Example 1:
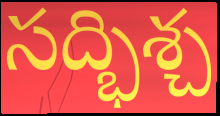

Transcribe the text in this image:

సద్భిశ్చ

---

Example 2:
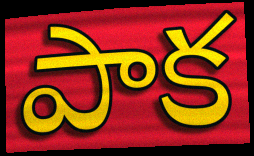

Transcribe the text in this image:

పాక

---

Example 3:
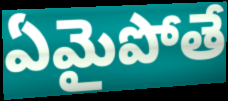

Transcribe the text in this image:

ఏమైపోతే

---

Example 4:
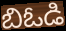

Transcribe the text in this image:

బిఓడి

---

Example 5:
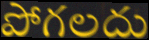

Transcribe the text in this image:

పోగలదు